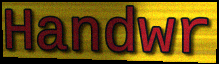
Handwr